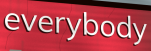
everybody